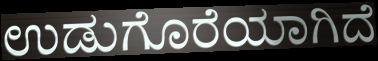
ಉಡುಗೊರೆಯಾಗಿದೆ